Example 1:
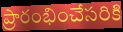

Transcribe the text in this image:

ప్రారంభించేసరికి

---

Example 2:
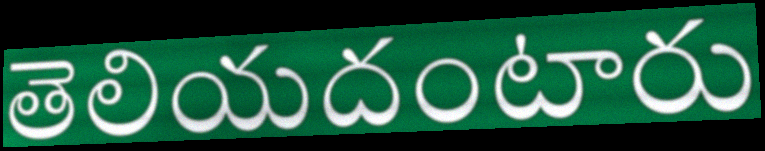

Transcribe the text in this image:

తెలియదంటారు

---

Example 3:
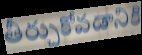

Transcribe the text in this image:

తీర్చుకోవడానికి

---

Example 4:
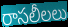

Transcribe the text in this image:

రాసలీలలు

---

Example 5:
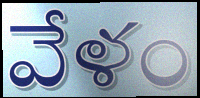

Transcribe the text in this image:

వేళం